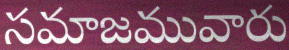
సమాజమువారు